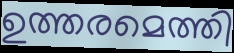
ഉത്തരമെത്തി